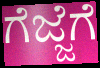
ಗೆಜ್ಜೆಗೆ